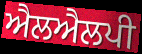
ਐਲਐਲਪੀ